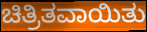
ಚಿತ್ರಿತವಾಯಿತು